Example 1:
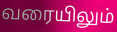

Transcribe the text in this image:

வரையிலும்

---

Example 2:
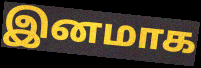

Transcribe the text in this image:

இனமாக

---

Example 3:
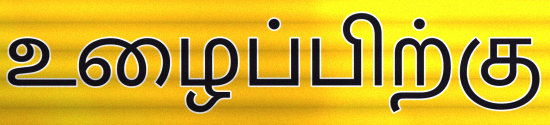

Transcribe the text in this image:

உழைப்பிற்கு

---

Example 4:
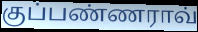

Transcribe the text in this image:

குப்பண்ணராவ்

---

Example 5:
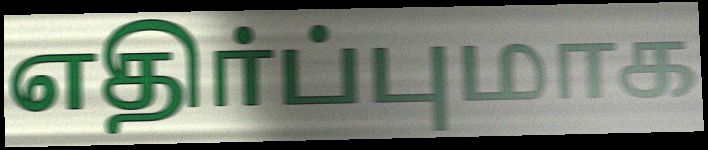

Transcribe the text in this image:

எதிர்ப்புமாக